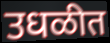
उधळीत